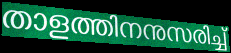
താളത്തിനനുസരിച്ച്